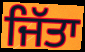
ਜਿੱਤਾ